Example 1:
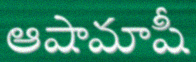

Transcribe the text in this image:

ఆషామాషీ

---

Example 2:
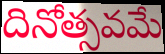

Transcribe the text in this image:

దినోత్సవమే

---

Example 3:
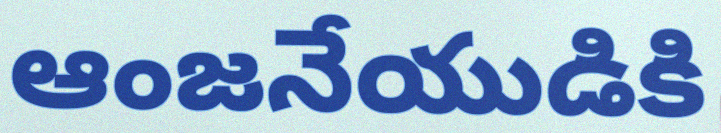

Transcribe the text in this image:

ఆంజనేయుడికి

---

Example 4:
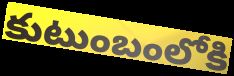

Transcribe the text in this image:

కుటుంబంలోకి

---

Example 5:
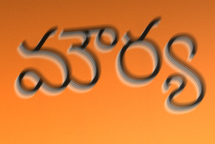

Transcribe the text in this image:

మౌర్య